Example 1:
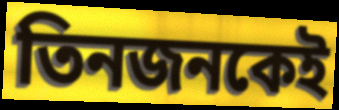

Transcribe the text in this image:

তিনজনকেই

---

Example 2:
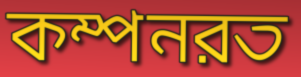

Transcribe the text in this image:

কম্পনরত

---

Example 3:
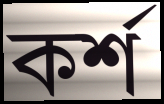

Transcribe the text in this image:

কর্শ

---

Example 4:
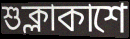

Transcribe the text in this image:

শুক্লাকাশে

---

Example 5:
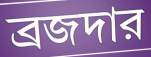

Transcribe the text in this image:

ব্রজদার